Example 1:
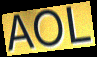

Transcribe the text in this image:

AOL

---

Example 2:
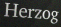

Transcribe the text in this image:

Herzog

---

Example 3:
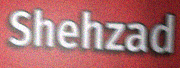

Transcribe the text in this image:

Shehzad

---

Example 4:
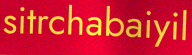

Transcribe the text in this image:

sitrchabaiyil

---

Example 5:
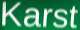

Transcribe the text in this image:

Karst